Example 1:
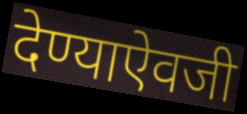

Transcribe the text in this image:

देण्याऐवजी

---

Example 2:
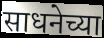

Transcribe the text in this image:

साधनेच्या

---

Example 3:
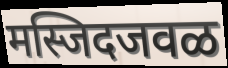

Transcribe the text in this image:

मस्जिदजवळ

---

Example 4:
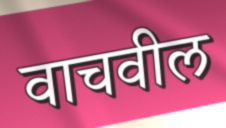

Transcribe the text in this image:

वाचवील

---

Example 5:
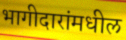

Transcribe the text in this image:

भागीदारांमधील